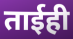
ताईही